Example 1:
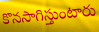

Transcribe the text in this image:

కొనసాగిస్తుంటారు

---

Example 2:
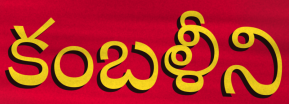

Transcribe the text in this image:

కంబళీని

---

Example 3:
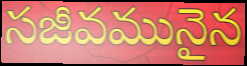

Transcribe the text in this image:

సజీవమునైన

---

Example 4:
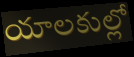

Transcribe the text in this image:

యాలకుల్లో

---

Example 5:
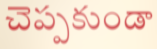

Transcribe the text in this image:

చెప్పకుండా